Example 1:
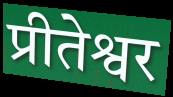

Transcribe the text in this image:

प्रीतेश्वर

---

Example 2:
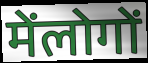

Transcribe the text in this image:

मेंलोगों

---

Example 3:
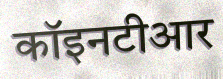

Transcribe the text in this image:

कॉइनटीआर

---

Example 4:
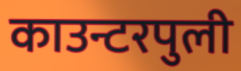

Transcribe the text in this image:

काउन्टरपुली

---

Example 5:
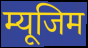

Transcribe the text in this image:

म्यूजिम